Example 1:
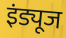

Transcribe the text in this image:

इंड्यूज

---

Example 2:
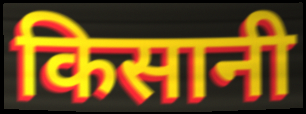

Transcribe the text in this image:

किसानी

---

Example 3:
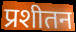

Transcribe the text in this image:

प्रशीतन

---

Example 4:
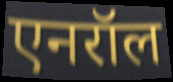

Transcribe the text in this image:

एनरॉल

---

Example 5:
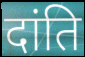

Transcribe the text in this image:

दांति